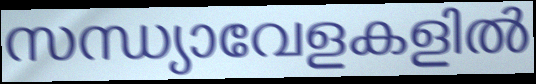
സന്ധ്യാവേളകളിൽ